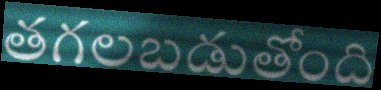
తగలబడుతోంది